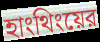
হাংথিংয়ের